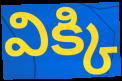
విక్కి